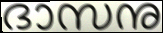
ദാസനു